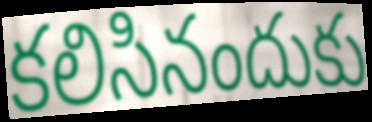
కలిసినందుకు